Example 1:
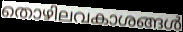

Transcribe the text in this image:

തൊഴിലവകാശങ്ങൾ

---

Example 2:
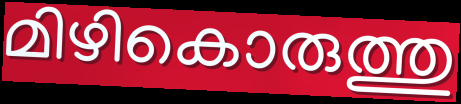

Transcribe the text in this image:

മിഴികൊരുത്തു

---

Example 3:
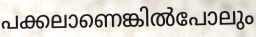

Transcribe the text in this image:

പക്കലാണെങ്കിൽപോലും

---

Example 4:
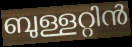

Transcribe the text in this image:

ബുള്ളറ്റിൻ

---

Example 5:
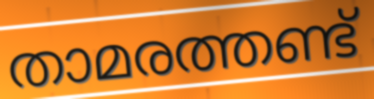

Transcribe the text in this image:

താമരത്തണ്ട്